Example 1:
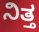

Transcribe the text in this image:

ನಿತ್ತ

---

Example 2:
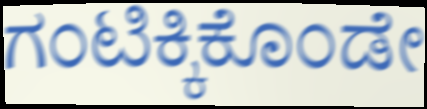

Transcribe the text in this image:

ಗಂಟಿಕ್ಕಿಕೊಂಡೇ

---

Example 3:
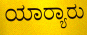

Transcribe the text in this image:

ಯಾರ್‍ಯಾರು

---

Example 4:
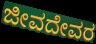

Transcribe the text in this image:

ಜೀವದೇವರ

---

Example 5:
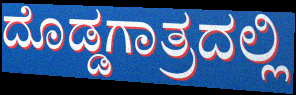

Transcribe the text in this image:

ದೊಡ್ಡಗಾತ್ರದಲ್ಲಿ